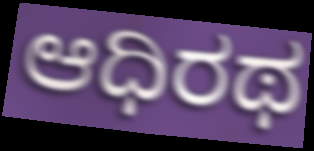
ಆಧಿರಥ